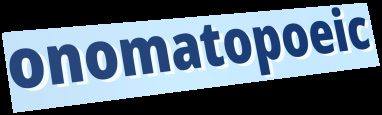
onomatopoeic